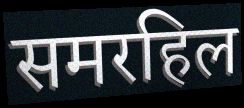
समरहिल